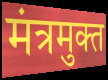
मंत्रमुक्त